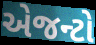
એજન્ટો